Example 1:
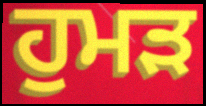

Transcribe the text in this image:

ਹੁਮੜ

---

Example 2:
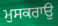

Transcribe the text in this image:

ਮੁਸਕਰਾਉ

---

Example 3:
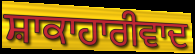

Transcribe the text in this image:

ਸ਼ਾਕਾਹਾਰੀਵਾਦ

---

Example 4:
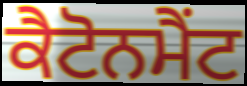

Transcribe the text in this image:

ਕੈਟੋਨਮੈਂਟ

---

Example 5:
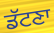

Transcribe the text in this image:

ਡੱਟਣਾ